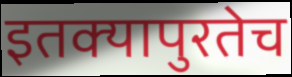
इतक्यापुरतेच